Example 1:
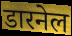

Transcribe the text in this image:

डारनेल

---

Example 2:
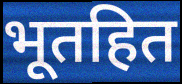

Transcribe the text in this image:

भूतहित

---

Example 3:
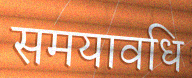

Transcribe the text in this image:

समयावधि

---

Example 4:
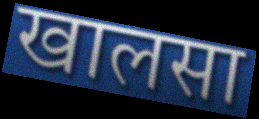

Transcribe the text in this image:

खालसा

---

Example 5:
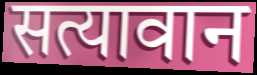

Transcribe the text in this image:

सत्यावान